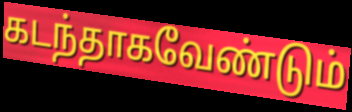
கடந்தாகவேண்டும்